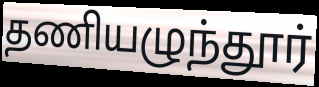
தணியழுந்தூர்